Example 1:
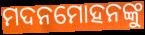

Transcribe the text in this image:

ମଦନମୋହନଙ୍କୁ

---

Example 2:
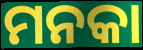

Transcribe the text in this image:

ମନକା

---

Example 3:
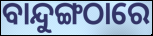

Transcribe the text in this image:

ବାନ୍ଦୁଙ୍ଗଠାରେ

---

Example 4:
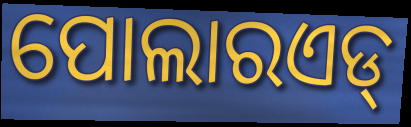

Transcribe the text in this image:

ପୋଲାରଏଡ୍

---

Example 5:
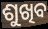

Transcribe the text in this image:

ଶୁଖିବ